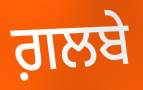
ਗ਼ਲਬੇ